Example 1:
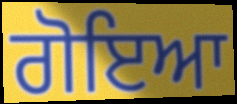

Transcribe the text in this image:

ਗੋਇਆ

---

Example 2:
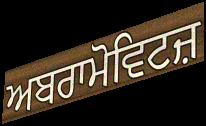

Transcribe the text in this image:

ਅਬਰਾਮੋਵਿਟਜ਼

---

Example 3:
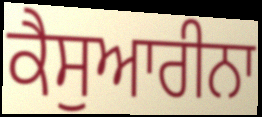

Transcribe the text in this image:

ਕੈਸੁਆਰੀਨਾ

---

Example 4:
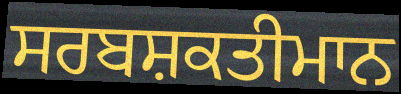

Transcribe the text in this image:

ਸਰਬਸ਼ਕਤੀਮਾਨ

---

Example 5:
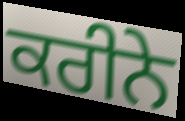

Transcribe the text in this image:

ਕਰੀਨੇ